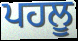
ਪਹਲੂ